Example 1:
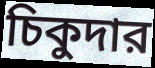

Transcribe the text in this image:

চিকুদার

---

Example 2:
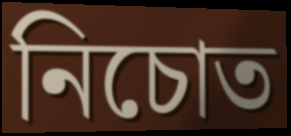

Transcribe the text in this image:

নিচোত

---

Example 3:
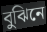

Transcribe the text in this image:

বুঝিনে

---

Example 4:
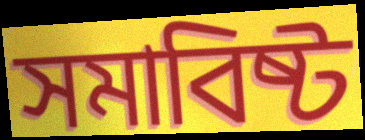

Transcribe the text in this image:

সমাবিষ্ট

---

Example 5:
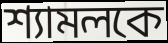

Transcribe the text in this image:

শ্যামলকে